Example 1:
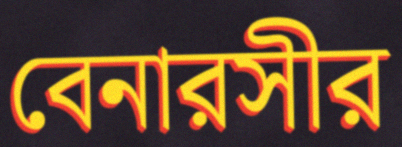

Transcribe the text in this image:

বেনারসীর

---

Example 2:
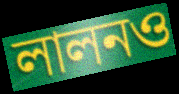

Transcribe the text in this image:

লালনও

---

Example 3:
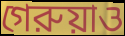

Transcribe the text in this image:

গেরুয়াও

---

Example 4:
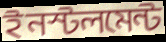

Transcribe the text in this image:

ইনস্টলমেন্ট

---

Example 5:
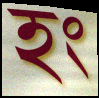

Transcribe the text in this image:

হং